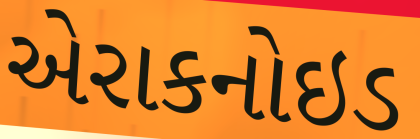
એરાકનોઇડ